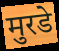
मुरडे